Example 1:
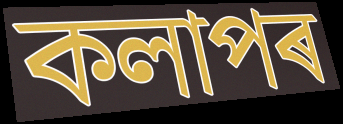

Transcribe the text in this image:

কলাপৰ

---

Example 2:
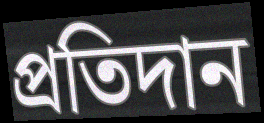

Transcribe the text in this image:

প্ৰতিদান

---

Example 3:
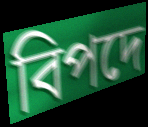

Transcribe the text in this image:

বিপদে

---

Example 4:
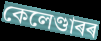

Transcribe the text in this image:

কেলেণ্ডাৰৰ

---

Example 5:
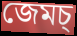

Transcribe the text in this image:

জেমচ্